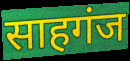
साहगंज